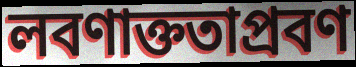
লবণাক্ততাপ্রবণ